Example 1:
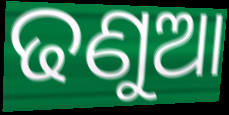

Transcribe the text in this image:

ଢଣୁଆ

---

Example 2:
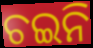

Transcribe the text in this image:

ଚଇନି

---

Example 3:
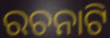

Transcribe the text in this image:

ରଚନାଟି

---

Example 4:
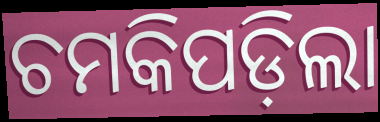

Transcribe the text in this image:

ଚମକିପଡ଼ିଲା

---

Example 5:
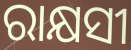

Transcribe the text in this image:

ରାକ୍ଷସୀ